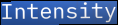
Intensity